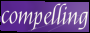
compelling